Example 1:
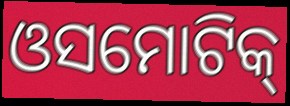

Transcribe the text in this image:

ଓସମୋଟିକ୍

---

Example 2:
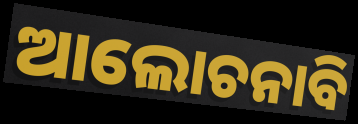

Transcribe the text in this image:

ଆଲୋଚନାବି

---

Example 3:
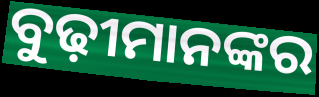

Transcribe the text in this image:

ବୁଢ଼ୀମାନଙ୍କର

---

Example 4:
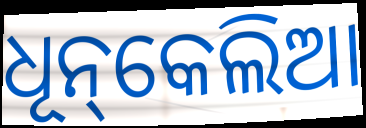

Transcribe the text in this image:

ଧୂନ୍‌କେଲିଆ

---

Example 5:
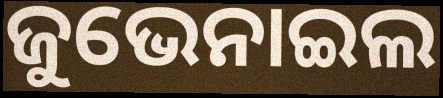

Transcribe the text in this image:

ଜୁଭେନାଇଲ